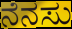
ನೆನಸು